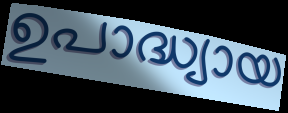
ഉപാദ്ധ്യായ